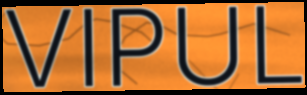
VIPUL